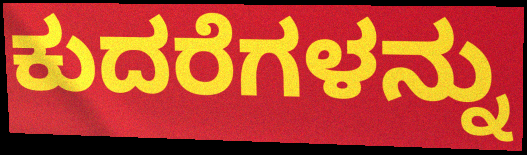
ಕುದರೆಗಳನ್ನು